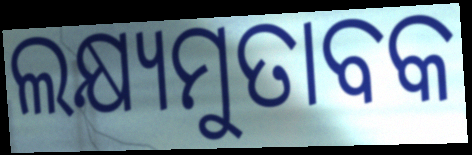
ଲକ୍ଷ୍ୟମୁତାବକ